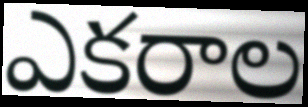
ఎకరాల